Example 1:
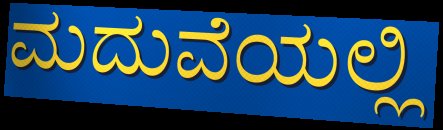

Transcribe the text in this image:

ಮದುವೆಯಲ್ಲಿ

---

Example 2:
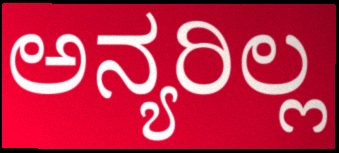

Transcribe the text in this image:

ಅನ್ಯರಿಲ್ಲ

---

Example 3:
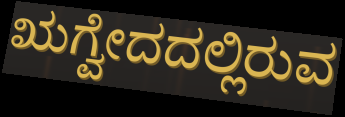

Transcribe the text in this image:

ಋಗ್ವೇದದಲ್ಲಿರುವ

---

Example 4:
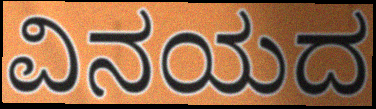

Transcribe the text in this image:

ವಿನಯದ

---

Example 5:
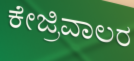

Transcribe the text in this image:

ಕೇಜ್ರಿವಾಲರ